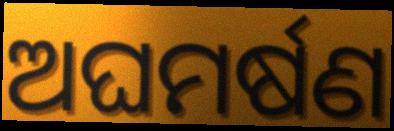
ଅଘମର୍ଷଣ